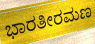
ಭಾರತೀರಮಣ